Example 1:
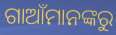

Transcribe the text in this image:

ଗାଆଁମାନଙ୍କରୁ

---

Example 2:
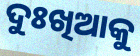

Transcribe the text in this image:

ଦୁଃଖିଆକୁ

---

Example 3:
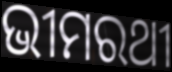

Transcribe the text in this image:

ଭୀମରଥୀ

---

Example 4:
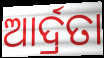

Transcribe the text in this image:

ଆର୍ଦ୍ରତା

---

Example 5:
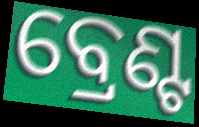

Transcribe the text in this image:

ବ୍ରେଣ୍ଟ